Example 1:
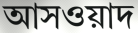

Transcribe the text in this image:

আসওয়াদ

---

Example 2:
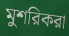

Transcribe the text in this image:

মুশরিকরা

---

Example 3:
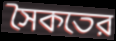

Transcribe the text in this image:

সৈকতের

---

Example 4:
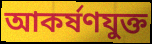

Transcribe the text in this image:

আকর্ষণযুক্ত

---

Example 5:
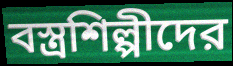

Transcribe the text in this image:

বস্ত্রশিল্পীদের